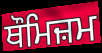
ਥੌਮਿਜ਼ਮ